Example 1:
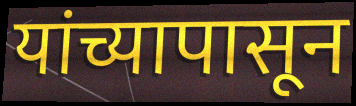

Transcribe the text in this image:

यांच्यापासून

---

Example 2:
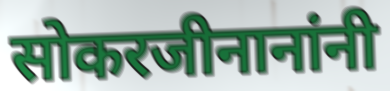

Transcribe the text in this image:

सोकरजीनानांनी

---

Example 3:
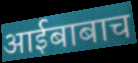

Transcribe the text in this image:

आईबाबाच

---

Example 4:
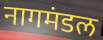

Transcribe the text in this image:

नागमंडल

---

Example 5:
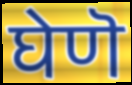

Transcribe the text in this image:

घेणॆ